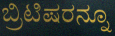
ಬ್ರಿಟಿಷರನ್ನೂ